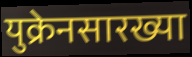
युक्रेनसारख्या